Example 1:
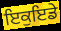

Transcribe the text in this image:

ਇਕੁਇਡੇ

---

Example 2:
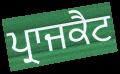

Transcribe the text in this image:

ਪ੍ਰਾਜਕੈਟ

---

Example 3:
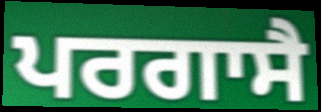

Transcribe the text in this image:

ਪਰਗਾਸੈ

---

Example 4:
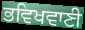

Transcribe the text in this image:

ਭਵਿਖਵਾਣੀ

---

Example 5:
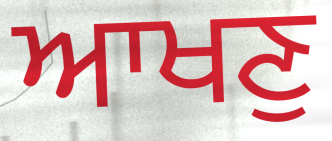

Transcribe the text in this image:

ਆਖਣੁ